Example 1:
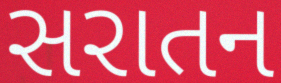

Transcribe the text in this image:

સરાતન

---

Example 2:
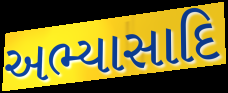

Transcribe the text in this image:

અભ્યાસાદિ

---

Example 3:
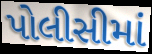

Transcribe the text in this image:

પોલીસીમાં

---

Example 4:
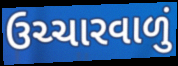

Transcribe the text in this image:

ઉચ્ચારવાળું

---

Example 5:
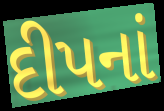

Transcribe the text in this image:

દીપનાં